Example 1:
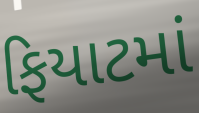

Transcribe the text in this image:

ફિયાટમાં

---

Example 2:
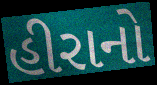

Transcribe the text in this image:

હીરાનો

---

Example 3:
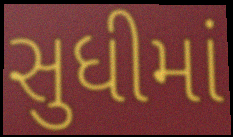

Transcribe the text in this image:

સુધીમાં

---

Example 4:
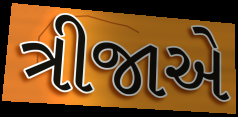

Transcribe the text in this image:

ત્રીજાએ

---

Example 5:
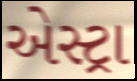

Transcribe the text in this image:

એસ્ટ્રા